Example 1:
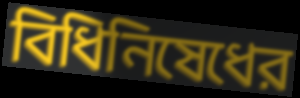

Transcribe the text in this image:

বিধিনিষেধের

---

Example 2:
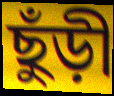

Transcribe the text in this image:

ছুঁড়ী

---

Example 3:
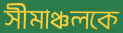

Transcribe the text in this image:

সীমাঞ্চলকে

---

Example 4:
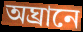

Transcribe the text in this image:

অঘ্রানে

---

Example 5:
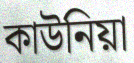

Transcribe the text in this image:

কাউনিয়া